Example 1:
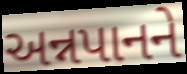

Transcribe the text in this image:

અન્નપાનને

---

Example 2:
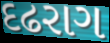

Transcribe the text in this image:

દઢરાગ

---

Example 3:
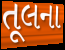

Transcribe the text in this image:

તૂલના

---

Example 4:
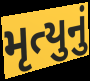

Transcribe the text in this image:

મૃત્યુનું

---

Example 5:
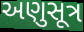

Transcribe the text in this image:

અણુસૂત્ર